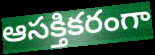
ఆసక్తికరంగా